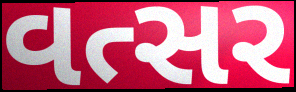
વત્સર